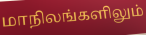
மாநிலங்களிலும்